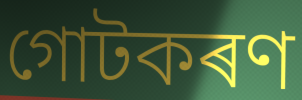
গোটকৰণ